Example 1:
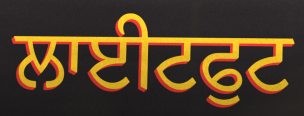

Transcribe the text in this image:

ਲਾਈਟਫੁਟ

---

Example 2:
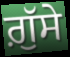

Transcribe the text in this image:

ਗ਼ੁੱਸੇ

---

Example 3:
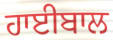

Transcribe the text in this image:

ਹਾਈਬਾਲ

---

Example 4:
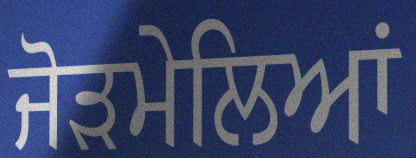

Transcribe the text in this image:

ਜੋੜਮੇਲਿਆਂ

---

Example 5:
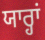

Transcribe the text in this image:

ਯਾਰ੍ਹਾਂ